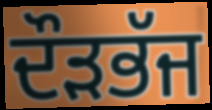
ਦੌੜਭੱਜ